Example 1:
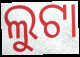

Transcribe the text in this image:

ଲୁଟା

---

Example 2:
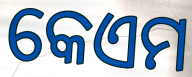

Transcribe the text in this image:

କେଏମ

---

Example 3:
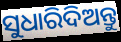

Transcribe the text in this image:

ସୁଧାରିଦିଅନ୍ତୁ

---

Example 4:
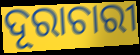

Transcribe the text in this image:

ଦୂରାଚାରୀ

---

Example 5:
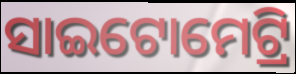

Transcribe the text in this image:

ସାଇଟୋମେଟ୍ରି